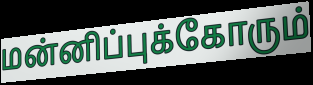
மன்னிப்புக்கோரும்